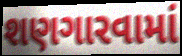
શણગારવામાં